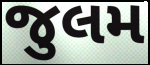
જુલમ